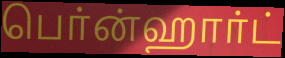
பெர்ன்ஹார்ட்